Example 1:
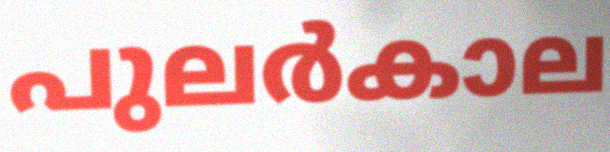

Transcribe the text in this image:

പുലർകാല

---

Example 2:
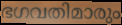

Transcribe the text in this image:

ഭഗവതിമാരും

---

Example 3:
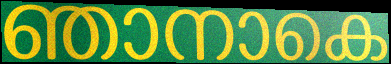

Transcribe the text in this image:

ഞാനാകെ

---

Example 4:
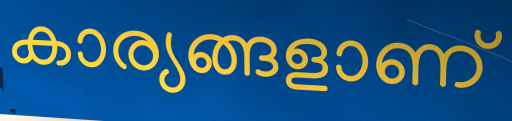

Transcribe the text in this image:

കാര്യങ്ങളാണ്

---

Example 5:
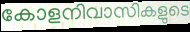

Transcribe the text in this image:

കോളനിവാസികളുടെ